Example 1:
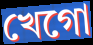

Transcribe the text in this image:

খেগো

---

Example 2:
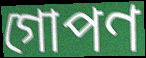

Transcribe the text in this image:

গোপণ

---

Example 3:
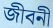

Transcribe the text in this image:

জীবনী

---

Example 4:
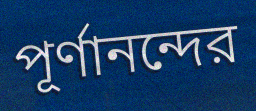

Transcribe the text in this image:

পূর্ণানন্দের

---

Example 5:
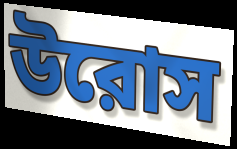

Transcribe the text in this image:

উরোস